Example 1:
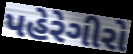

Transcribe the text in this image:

પહેરેગીરો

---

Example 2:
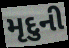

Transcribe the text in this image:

મૃદુની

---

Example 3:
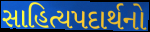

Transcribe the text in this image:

સાહિત્યપદાર્થનો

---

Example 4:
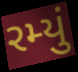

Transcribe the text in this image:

રમ્યું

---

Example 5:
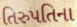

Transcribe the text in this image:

તિરુપતિના